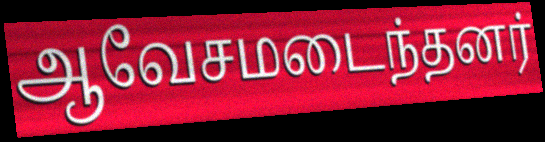
ஆவேசமடைந்தனர்